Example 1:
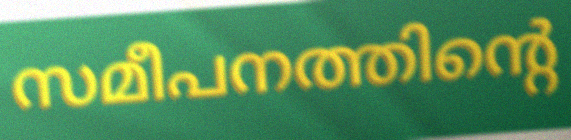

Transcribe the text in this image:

സമീപനത്തിന്റെ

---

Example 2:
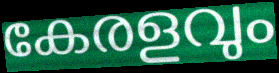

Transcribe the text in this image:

കേരളവും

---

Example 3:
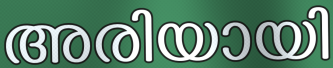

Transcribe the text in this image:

അരിയായി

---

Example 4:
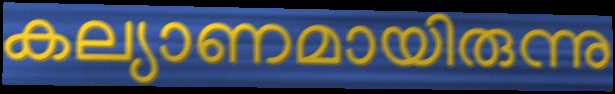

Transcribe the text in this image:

കല്യാണമായിരുന്നു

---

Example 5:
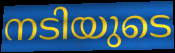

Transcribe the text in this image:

നടിയുടെ